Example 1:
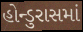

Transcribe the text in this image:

હોન્ડુરાસમાં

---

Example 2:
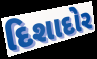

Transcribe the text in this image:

દિશાદોર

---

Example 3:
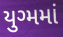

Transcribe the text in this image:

યુગ્મમાં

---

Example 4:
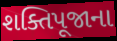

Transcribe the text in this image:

શક્તિપૂજાના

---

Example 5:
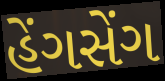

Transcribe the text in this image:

હેંગસેંગ